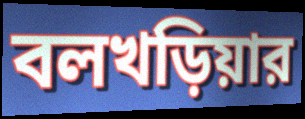
বলখড়িয়ার